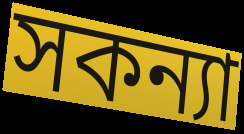
সকন্যা